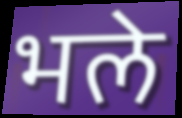
भले